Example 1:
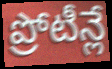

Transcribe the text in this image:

ప్రోటీన్లే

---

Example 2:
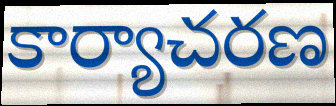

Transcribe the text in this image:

కార్యాచరణ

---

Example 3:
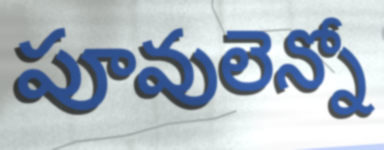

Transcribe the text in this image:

పూవులెన్నో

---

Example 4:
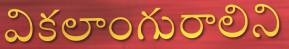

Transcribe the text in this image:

వికలాంగురాలిని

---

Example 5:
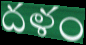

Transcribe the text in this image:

దళం